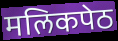
मलिकपेठ